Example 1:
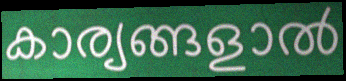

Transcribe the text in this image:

കാര്യങ്ങളാൽ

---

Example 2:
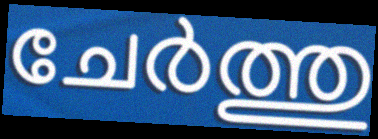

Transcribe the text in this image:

ചേർത്തു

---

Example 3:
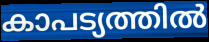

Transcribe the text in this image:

കാപട്യത്തിൽ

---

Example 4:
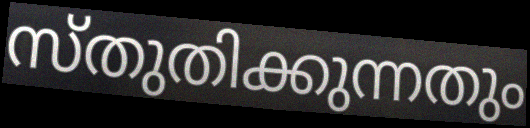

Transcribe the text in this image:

സ്തുതിക്കുന്നതും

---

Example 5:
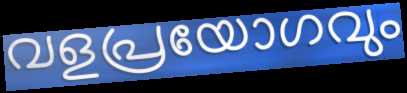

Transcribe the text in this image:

വളപ്രയോഗവും